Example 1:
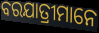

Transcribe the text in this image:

ବରଯାତ୍ରୀମାନେ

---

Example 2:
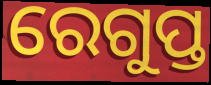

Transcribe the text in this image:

ରେଗୁପ୍ତ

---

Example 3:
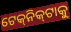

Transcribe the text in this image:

ଟେକ୍‌ନିକ୍‌ଟାକୁ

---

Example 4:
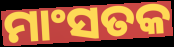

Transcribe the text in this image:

ମାଂସତକ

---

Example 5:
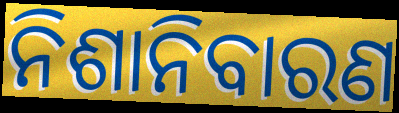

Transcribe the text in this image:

ନିଶାନିବାରଣ